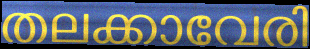
തലക്കാവേരി